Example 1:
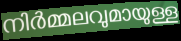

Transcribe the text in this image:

നിർമ്മലവുമായുള്ള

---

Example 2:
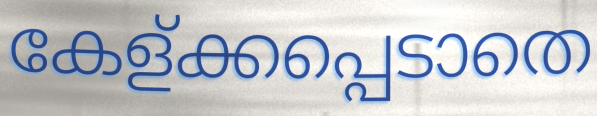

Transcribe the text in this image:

കേള്ക്കപ്പെടാതെ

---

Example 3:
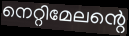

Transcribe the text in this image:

നെറ്റിമേലന്റെ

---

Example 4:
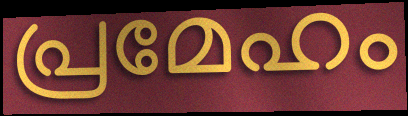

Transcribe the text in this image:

പ്രമേഹം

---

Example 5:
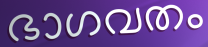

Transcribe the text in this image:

ഭാഗവതം